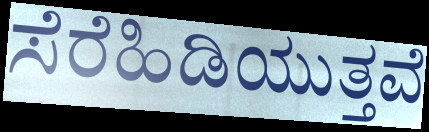
ಸೆರೆಹಿಡಿಯುತ್ತವೆ